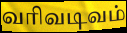
வரிவடிவம்